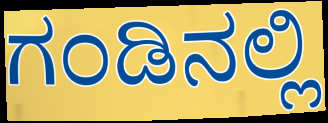
ಗಂಡಿನಲ್ಲಿ